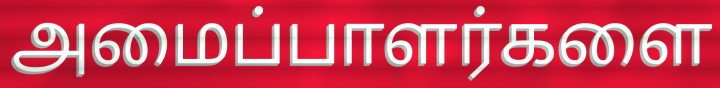
அமைப்பாளர்களை